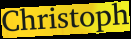
Christoph